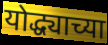
योद्ध्याच्या